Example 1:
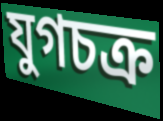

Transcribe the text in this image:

যুগচক্র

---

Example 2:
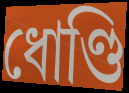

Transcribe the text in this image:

ধোণ্ডি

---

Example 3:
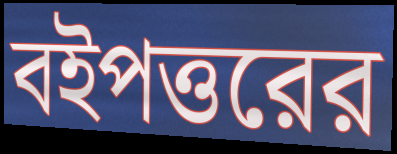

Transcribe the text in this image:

বইপত্তরের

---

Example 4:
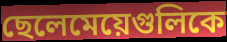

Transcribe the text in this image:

ছেলেমেয়েগুলিকে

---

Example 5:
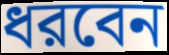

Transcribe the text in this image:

ধরবেন